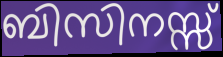
ബിസിനസ്സ്